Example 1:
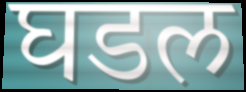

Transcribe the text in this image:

घडल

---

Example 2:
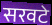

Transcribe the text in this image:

सरवटे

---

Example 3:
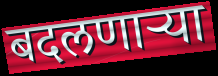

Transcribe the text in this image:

बदलणार्‍या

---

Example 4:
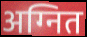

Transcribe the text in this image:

अग्नित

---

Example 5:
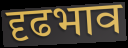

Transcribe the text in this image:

दृढभाव